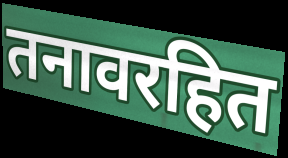
तनावरहित